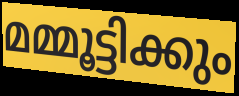
മമ്മൂട്ടിക്കും